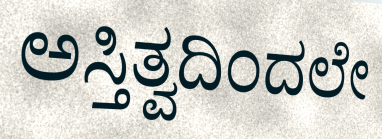
ಅಸ್ತಿತ್ವದಿಂದಲೇ